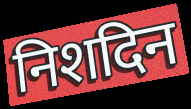
निशदिन